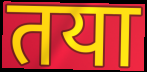
तया